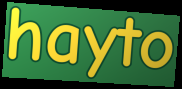
hayto